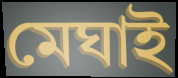
মেঘাই